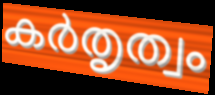
കർതൃത്വം